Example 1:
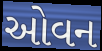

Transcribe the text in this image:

ઓવન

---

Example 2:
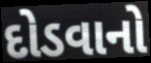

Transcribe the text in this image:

દોડવાનો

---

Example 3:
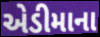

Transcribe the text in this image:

એડીમાના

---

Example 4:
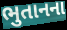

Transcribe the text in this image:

ભુતાનના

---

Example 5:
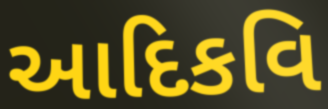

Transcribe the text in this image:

આદિકવિ